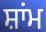
ਸ਼ਾਂਮ